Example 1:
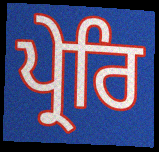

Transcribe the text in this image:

ਪ੍ਰੇਰਿ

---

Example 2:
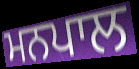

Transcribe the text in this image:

ਮਨਪਾਲ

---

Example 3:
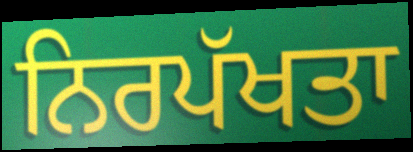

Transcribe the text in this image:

ਨਿਰਪੱਖਤਾ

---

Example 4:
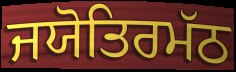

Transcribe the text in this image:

ਜਯੋਤਿਰਮੱਠ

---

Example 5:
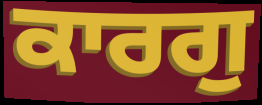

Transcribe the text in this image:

ਕਾਰਗੁ